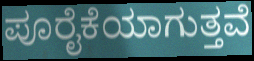
ಪೂರೈಕೆಯಾಗುತ್ತವೆ